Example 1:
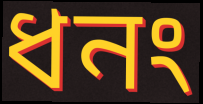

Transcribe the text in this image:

ধনং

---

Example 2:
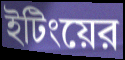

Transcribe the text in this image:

ইটিংয়ের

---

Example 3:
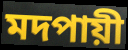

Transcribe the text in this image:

মদপায়ী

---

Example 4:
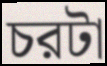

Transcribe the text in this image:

চরটা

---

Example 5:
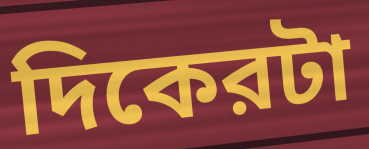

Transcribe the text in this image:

দিকেরটা